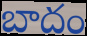
బాదం